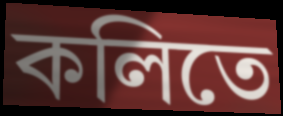
কলিতে